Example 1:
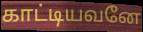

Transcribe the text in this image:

காட்டியவனே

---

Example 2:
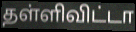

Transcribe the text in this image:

தள்ளிவிட்டா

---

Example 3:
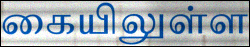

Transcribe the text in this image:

கையிலுள்ள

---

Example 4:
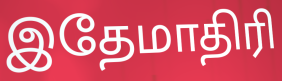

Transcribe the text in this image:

இதேமாதிரி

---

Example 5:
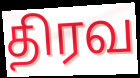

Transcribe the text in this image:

திரவ